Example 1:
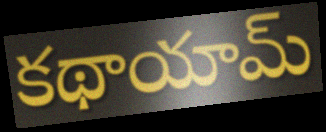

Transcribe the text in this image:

కథాయామ్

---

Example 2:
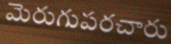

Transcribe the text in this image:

మెరుగుపరచారు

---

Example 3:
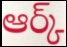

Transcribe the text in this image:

ఆర్క్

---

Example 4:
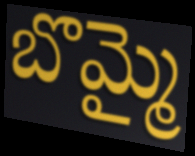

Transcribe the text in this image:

బొమ్మై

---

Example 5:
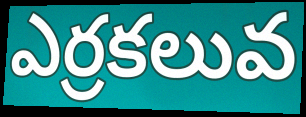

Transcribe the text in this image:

ఎర్రకలువ